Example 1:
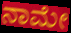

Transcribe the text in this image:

ನಾಮೇ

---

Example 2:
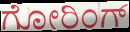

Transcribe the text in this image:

ಗೋರಿಂಗ್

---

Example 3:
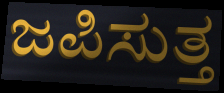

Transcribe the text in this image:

ಜಪಿಸುತ್ತ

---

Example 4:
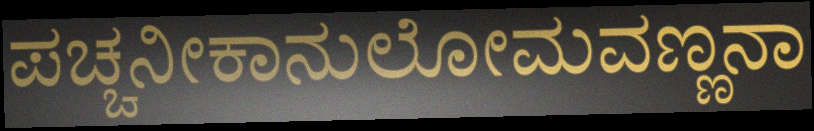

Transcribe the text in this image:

ಪಚ್ಚನೀಕಾನುಲೋಮವಣ್ಣನಾ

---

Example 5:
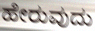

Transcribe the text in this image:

ಹೇರುವುದು